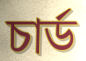
চার্ড